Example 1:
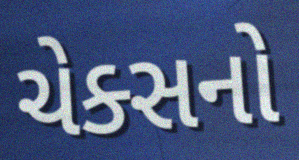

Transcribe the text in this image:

ચેક્સનો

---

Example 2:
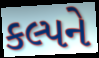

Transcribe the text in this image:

કલ્પને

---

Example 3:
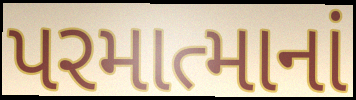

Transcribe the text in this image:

પરમાત્માનાં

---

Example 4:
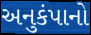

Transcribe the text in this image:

અનુકંપાનો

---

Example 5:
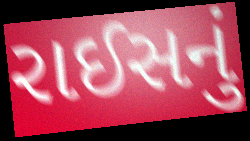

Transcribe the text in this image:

રાઈસનું